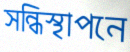
সন্ধিস্থাপনে